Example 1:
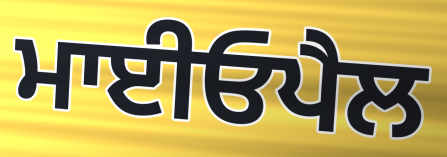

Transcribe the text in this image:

ਮਾਈਓਪੈਲ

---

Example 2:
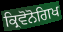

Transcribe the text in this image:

ਕ੍ਰਿਵੋਨੋਗਿਖ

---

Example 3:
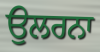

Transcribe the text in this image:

ਉਲਰਨਾ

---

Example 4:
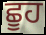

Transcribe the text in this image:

ਛੂਹ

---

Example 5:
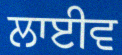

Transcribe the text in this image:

ਲਾਈਵ